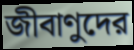
জীবাণুদের